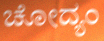
ಚೋದ್ಯಂ